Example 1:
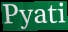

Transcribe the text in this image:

Pyati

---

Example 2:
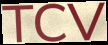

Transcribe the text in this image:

TCV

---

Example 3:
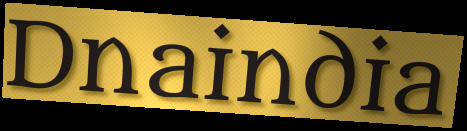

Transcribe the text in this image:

Dnaindia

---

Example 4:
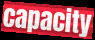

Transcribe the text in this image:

capacity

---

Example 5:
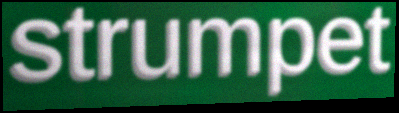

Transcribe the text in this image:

strumpet